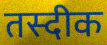
तस्दीक